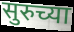
सुरुच्या